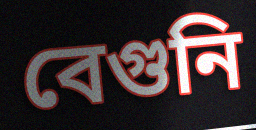
বেগুনি